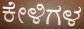
ಕೇಳಿಗಳ